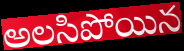
అలసిపోయిన